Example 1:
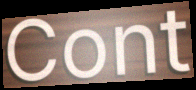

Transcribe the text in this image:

Cont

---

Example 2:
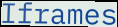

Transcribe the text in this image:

Iframes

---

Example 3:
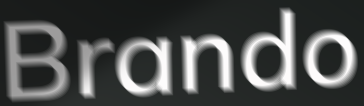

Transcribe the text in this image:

Brando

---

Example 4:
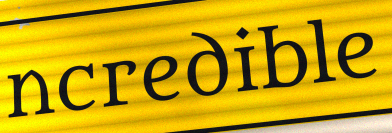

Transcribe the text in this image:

ncredible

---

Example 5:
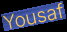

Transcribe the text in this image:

Yousaf